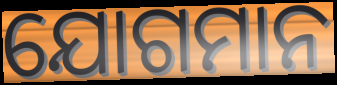
ଯୋଗମାନ